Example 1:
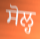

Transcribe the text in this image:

ਸੋਲ੍ਹ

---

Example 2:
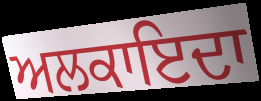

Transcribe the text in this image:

ਅਲਕਾਇਦਾ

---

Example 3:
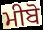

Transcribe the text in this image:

ਮੀਬੋ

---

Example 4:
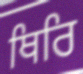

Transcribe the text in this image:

ਥਿਰਿ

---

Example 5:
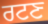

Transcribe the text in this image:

ਰਟਣ